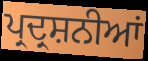
ਪ੍ਰਦ੍ਰਸ਼ਨੀਆਂ